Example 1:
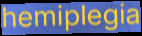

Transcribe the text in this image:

hemiplegia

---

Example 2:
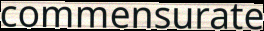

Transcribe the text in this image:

commensurate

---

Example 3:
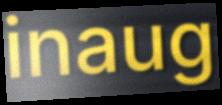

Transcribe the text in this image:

inaug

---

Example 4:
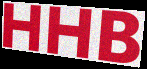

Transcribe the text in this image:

HHB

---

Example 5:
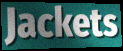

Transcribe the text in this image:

Jackets